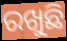
ରଖୁଛି